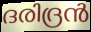
ദരിദ്രൻ